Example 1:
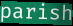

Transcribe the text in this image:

parish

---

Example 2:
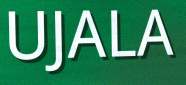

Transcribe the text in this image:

UJALA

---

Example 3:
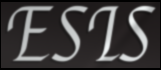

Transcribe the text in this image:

ESIS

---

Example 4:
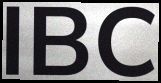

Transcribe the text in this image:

IBC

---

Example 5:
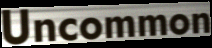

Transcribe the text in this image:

Uncommon